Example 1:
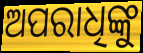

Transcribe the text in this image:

ଅପରାଧିଙ୍କୁ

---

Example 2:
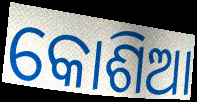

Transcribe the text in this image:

କୋଶିଆ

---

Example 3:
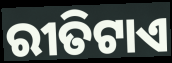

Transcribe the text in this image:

ରୀତିଟାଏ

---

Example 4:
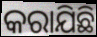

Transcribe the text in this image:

କରାଯିଛି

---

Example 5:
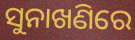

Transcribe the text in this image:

ସୁନାଖଣିରେ